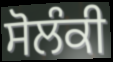
ਸੋਲੰਕੀ